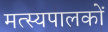
मत्स्यपालकों